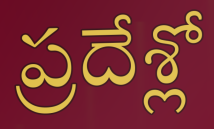
ప్రదేశ్లో